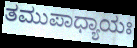
ತಮುಪಾಧ್ಯಾಯಃ